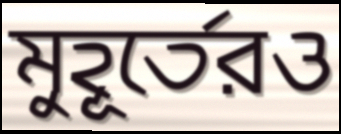
মুহূর্তেরও